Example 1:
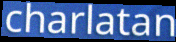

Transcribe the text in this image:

charlatan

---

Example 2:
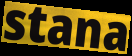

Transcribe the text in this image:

stana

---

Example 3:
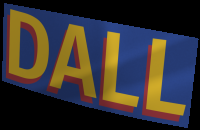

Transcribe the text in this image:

DALL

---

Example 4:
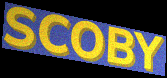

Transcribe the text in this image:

SCOBY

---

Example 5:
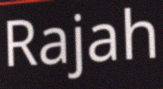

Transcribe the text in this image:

Rajah